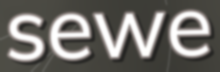
sewe